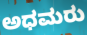
ಅಧಮರು